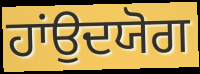
ਹਾਂਉਦਯੋਗ